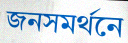
জনসমর্থনে